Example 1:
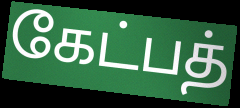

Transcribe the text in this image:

கேட்பத்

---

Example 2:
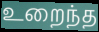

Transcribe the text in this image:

உறைந்த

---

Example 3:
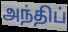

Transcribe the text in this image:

அந்திப்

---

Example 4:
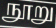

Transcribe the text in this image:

நூறு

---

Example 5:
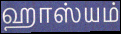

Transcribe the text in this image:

ஹாஸ்யம்